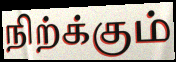
நிற்க்கும்